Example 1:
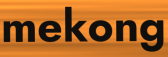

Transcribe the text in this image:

mekong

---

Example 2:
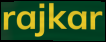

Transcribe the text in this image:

rajkar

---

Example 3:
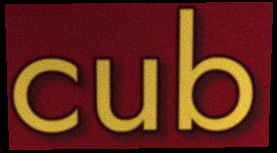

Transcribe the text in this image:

cub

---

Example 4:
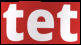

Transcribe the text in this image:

tet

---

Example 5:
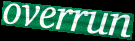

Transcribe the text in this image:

overrun